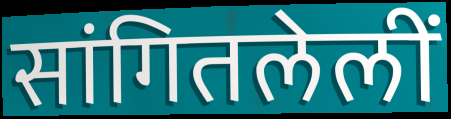
सांगितलेलीं